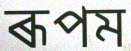
ৰূপম